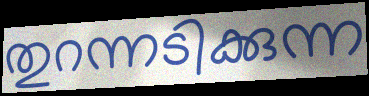
തുറന്നടിക്കുന്ന